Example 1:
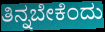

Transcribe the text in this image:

ತಿನ್ನಬೇಕೆಂದು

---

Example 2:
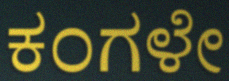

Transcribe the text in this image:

ಕಂಗಳೇ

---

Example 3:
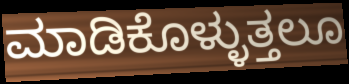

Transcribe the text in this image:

ಮಾಡಿಕೊಳ್ಳುತ್ತಲೂ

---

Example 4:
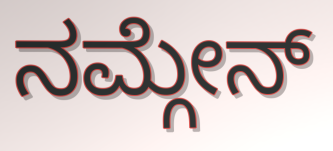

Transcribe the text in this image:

ನಮ್ಗೇನ್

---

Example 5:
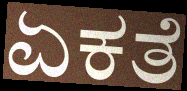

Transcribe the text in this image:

ಏಕತೆ